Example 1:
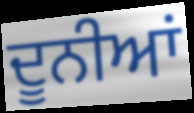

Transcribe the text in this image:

ਦੂਨੀਆਂ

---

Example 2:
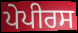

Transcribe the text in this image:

ਪੇਪੀਰਸ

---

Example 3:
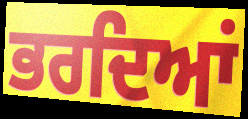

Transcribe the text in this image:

ਭਰਦਿਆਂ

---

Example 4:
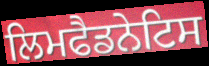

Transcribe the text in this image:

ਲਿਮਫੈਡਨੇਟਿਸ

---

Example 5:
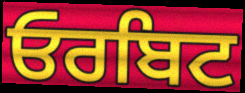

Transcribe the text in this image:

ਓਰਬਿਟ